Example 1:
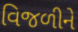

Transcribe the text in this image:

વિજળીને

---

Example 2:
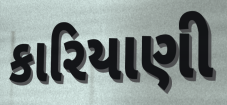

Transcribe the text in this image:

કારિયાણી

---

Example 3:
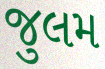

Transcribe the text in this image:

જુલમ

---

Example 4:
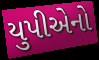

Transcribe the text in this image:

યુપીએનો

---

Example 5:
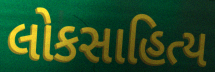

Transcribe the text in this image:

લોકસાહિત્ય